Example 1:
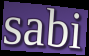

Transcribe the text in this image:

sabi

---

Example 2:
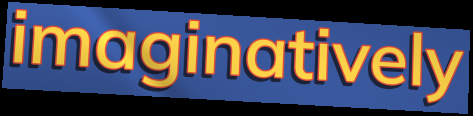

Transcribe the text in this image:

imaginatively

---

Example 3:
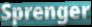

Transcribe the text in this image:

Sprenger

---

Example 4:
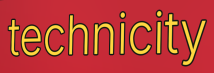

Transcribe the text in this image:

technicity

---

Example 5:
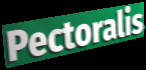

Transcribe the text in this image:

Pectoralis